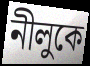
নীলুকে